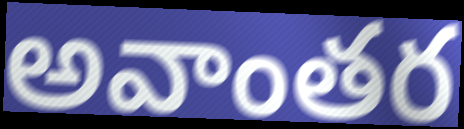
అవాంతర